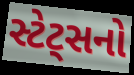
સ્ટેટ્સનો